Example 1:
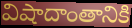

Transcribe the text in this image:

విషాదాంతానికి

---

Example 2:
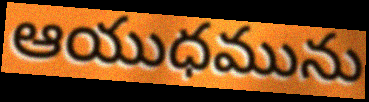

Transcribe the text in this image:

ఆయుధమును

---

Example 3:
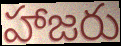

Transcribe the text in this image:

హాజరు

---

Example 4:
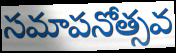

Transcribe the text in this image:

సమాపనోత్సవ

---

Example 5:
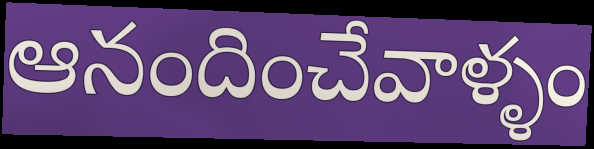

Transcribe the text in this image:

ఆనందించేవాళ్ళం